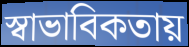
স্বাভাবিকতায়